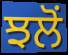
ਝਲੋਂ